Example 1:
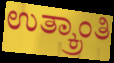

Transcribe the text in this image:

ಉತ್ಕ್ರಾಂತಿ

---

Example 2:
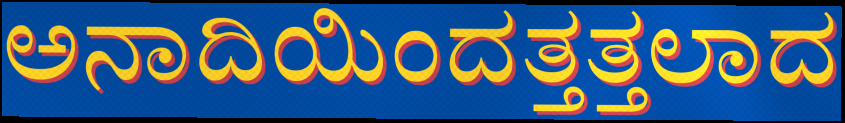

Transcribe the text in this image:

ಅನಾದಿಯಿಂದತ್ತತ್ತಲಾದ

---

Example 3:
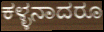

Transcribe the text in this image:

ಕಳ್ಳನಾದರೂ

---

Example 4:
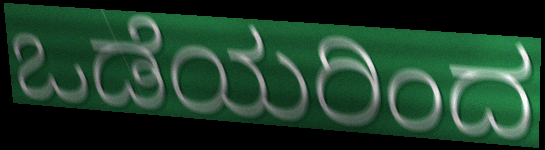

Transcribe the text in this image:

ಒಡೆಯರಿಂದ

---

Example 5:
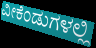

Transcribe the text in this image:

ವೀಕೆಂಡುಗಳಲ್ಲಿ